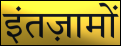
इंतज़ामों